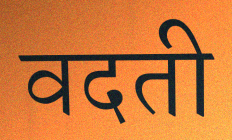
वदती